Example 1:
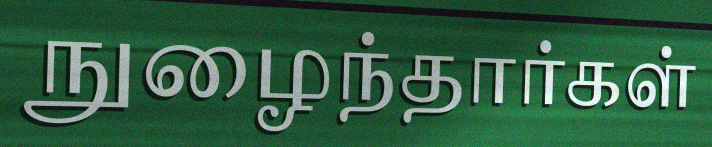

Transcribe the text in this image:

நுழைந்தார்கள்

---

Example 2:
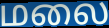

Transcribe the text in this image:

மலை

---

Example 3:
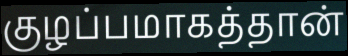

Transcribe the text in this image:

குழப்பமாகத்தான்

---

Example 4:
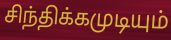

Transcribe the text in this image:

சிந்திக்கமுடியும்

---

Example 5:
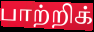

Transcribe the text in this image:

பாற்றிக்